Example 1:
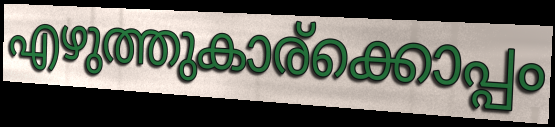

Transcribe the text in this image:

എഴുത്തുകാര്ക്കൊപ്പം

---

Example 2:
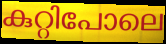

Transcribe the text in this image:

കുറ്റിപോലെ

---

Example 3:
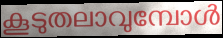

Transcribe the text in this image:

കൂടുതലാവുമ്പോൾ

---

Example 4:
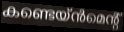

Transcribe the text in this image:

കണ്ടെയ്ൻമെന്റ്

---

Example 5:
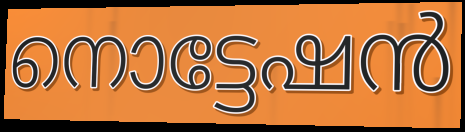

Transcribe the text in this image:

നൊട്ടേഷൻ